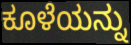
ಕೂಳೆಯನ್ನು